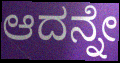
ಆದನ್ನೇ